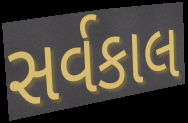
સર્વકાલ